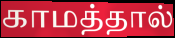
காமத்தால்